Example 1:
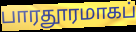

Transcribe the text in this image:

பாரதூரமாகப்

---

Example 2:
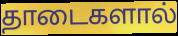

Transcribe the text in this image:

தாடைகளால்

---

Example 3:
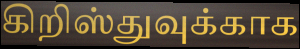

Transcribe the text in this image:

கிறிஸ்துவுக்காக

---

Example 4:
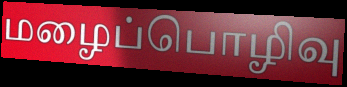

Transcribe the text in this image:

மழைப்பொழிவு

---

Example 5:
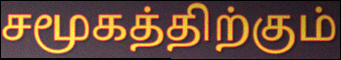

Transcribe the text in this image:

சமூகத்திற்கும்